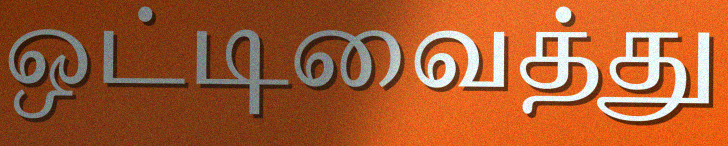
ஒட்டிவைத்து